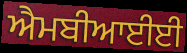
ਐਮਬੀਆਈਈ